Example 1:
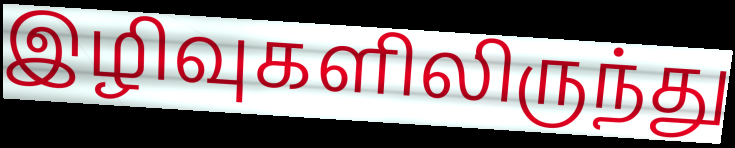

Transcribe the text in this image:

இழிவுகளிலிருந்து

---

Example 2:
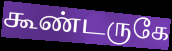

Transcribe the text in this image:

கூண்டருகே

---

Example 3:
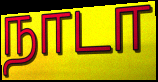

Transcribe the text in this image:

நாடா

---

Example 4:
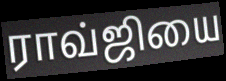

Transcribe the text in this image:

ராவ்ஜியை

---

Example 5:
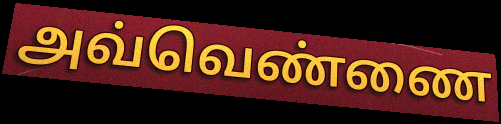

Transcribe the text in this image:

அவ்வெண்ணை